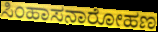
ಸಿಂಹಾಸನಾರೋಹಣ